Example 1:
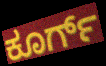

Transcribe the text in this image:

ಕೂರ್ಗ್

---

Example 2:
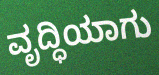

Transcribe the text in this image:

ವೃದ್ಧಿಯಾಗು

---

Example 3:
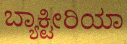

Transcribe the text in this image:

ಬ್ಯಾಕ್ಟೀರಿಯಾ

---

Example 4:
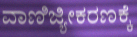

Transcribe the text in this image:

ವಾಣಿಜ್ಯೀಕರಣಕ್ಕೆ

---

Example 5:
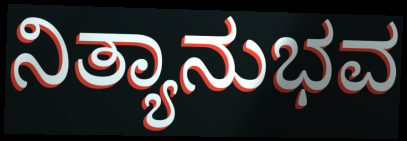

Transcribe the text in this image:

ನಿತ್ಯಾನುಭವ